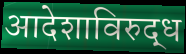
आदेशाविरुद्ध